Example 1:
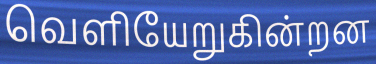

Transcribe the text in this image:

வெளியேறுகின்றன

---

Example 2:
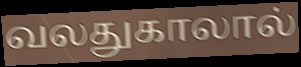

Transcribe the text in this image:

வலதுகாலால்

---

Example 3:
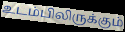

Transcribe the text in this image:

உடம்பிலிருக்கும்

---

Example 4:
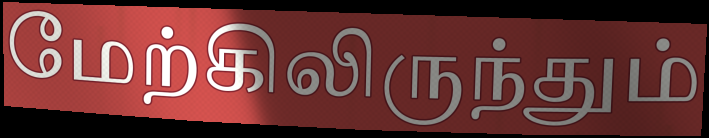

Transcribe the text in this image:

மேற்கிலிருந்தும்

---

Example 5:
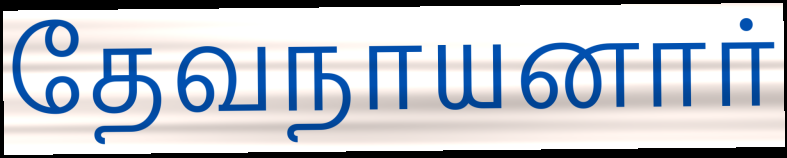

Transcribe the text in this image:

தேவநாயனார்